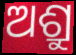
ଅଶ୍ରୁ